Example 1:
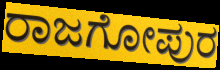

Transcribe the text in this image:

ರಾಜಗೋಪುರ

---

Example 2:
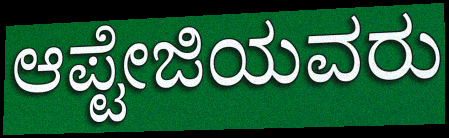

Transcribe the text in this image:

ಆಪ್ಟೇಜಿಯವರು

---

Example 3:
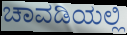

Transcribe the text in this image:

ಚಾವಡಿಯಲ್ಲಿ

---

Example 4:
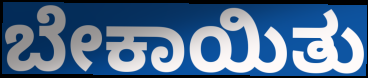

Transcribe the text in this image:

ಬೇಕಾಯಿತು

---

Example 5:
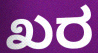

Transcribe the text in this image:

ಖರ